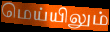
மெய்யிலும்